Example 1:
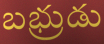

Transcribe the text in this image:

బభ్రుడు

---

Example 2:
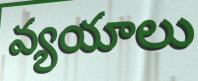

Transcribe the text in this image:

వ్యయాలు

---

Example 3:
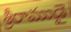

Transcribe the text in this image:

శ్రీరాముడై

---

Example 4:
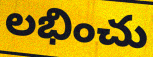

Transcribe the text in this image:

లభించు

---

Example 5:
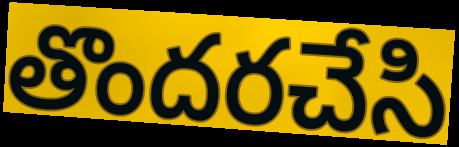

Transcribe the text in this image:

తొందరచేసి